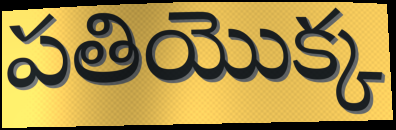
పతియొక్క